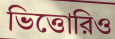
ভিত্তোরিও